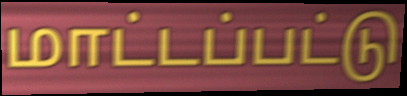
மாட்டப்பட்டு